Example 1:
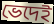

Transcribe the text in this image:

ভেদেই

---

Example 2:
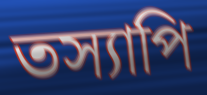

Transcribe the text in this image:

তস্যাপি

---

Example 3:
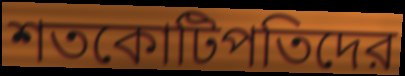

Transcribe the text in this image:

শতকোটিপতিদের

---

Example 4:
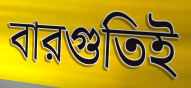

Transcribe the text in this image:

বারগুতিই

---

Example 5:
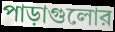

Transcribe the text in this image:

পাড়াগুলোর